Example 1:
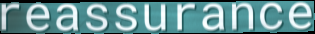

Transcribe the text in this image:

reassurance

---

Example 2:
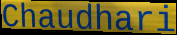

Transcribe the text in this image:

Chaudhari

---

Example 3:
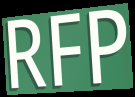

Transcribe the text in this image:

RFP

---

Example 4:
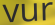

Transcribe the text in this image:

vur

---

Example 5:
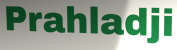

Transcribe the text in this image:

Prahladji